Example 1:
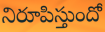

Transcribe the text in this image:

నిరూపిస్తుందో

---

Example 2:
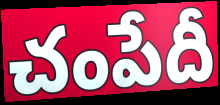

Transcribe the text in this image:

చంపేదీ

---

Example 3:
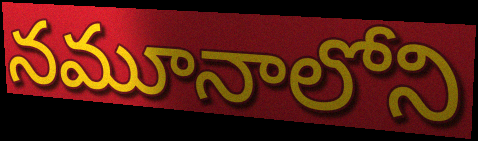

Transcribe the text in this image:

నమూనాలోని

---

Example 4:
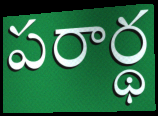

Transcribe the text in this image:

పరార్థ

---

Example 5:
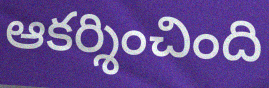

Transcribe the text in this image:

ఆకర్శించింది